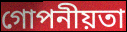
গোপনীয়তা